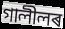
গালীলৰ